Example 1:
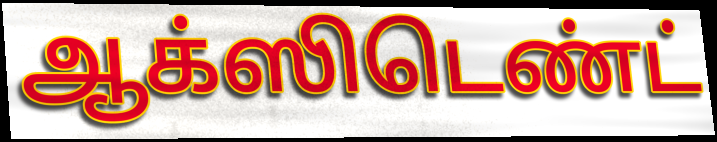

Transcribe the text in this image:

ஆக்ஸிடெண்ட்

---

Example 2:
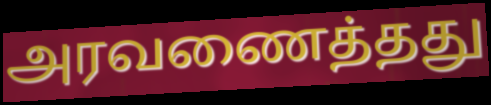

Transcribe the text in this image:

அரவணைத்தது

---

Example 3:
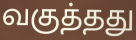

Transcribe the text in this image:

வகுத்தது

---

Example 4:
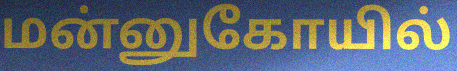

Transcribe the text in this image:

மன்னுகோயில்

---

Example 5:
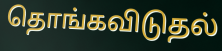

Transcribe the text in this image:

தொங்கவிடுதல்